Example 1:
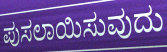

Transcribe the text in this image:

ಪುಸಲಾಯಿಸುವುದು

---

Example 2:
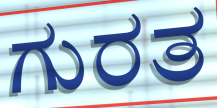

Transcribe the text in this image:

ಗುರತ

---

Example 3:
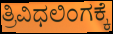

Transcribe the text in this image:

ತ್ರಿವಿಧಲಿಂಗಕ್ಕೆ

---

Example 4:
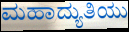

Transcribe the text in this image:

ಮಹಾದ್ಯುತಿಯು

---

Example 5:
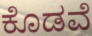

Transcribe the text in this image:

ಕೊಡವೆ